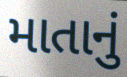
માતાનું